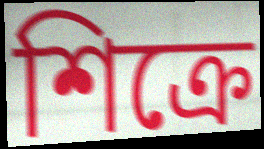
শিক্রে